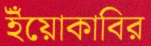
ইঁয়োকাবির